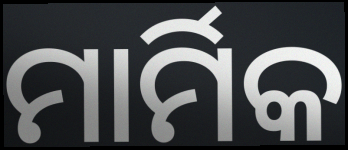
ମାର୍ମିକ